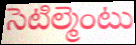
సెటిల్మెంటు